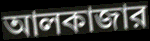
আলকাজার